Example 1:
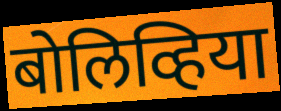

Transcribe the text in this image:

बोलिव्हिया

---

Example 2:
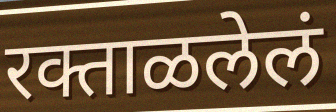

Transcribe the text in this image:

रक्ताळलेलं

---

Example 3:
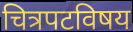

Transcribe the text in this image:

चित्रपटविषय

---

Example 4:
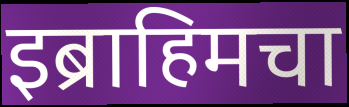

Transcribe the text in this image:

इब्राहिमचा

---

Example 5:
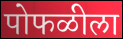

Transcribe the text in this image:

पोफळीला